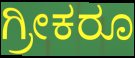
ಗ್ರೀಕರೂ